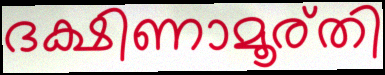
ദക്ഷിണാമൂര്തി